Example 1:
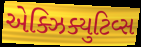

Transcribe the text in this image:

એક્ઝિક્યુટિવ્સ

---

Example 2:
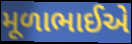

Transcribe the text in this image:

મૂળાભાઈએ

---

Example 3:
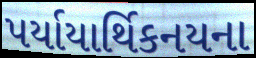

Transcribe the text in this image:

પર્યાયાર્થિકનયના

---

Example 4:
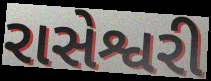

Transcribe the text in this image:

રાસેશ્વરી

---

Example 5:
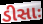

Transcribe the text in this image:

ડીસાઃ